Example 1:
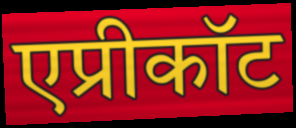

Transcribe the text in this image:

एप्रीकॉट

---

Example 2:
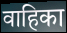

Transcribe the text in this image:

वाहिका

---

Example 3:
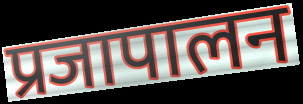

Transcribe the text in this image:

प्रजापालन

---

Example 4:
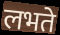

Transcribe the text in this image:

लभते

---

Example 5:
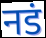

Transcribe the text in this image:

नडं